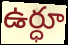
ఉర్ధూ